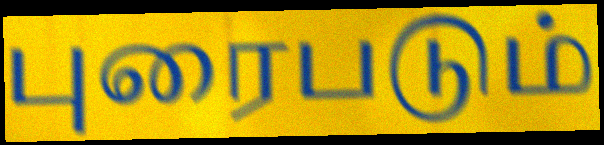
புரைபடும்